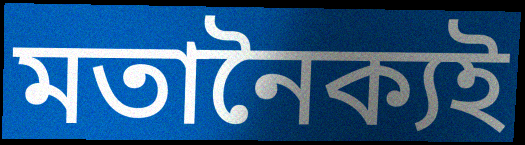
মতানৈক্যই